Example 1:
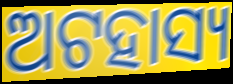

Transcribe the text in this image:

ଅଟହାସ୍ୟ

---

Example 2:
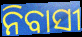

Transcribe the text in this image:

ନିବାସୀ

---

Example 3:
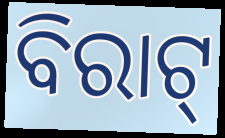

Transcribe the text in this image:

ବିରାଟ୍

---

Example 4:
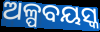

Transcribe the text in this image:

ଅଳ୍ପବୟସ୍କ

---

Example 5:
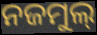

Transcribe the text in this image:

ନଜମୁଲ୍